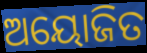
ଅୟୋଜିତ